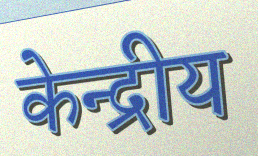
केन्द्रीय